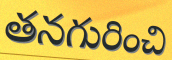
తనగురించి